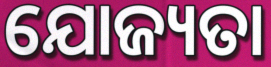
ଯୋଜ୍ୟତା